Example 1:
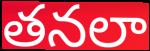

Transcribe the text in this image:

తనలా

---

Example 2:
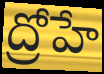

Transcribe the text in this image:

ద్రోహే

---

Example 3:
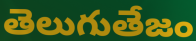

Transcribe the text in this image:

తెలుగుతేజం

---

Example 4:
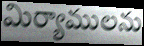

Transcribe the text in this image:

మిర్యాములను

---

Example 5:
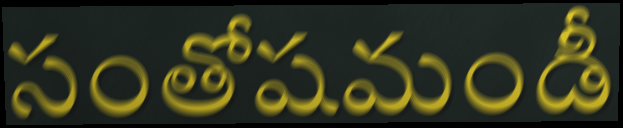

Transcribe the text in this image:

సంతోషమండీ